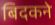
बिदकने